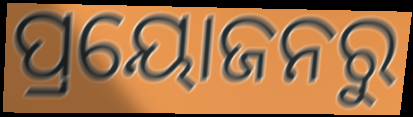
ପ୍ରୟୋଜନରୁ